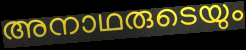
അനാഥരുടെയും